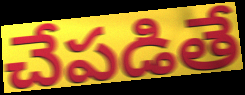
చేపడితే